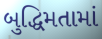
બુદ્ધિમતામાં